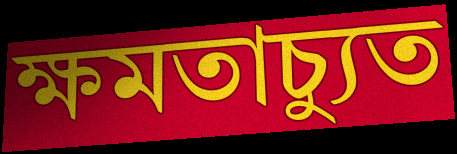
ক্ষমতাচ্যুত